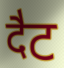
दैट